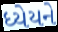
ધ્યેયને